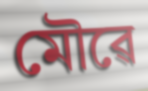
মৌৱে